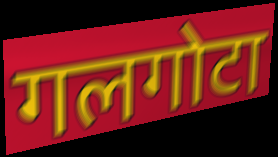
गलगोटा